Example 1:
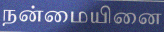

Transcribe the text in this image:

நன்மையினை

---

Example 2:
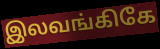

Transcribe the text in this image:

இலவங்கிகே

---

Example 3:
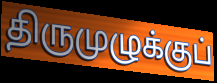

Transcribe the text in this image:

திருமுழுக்குப்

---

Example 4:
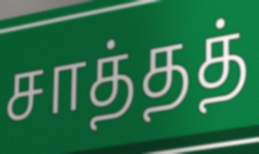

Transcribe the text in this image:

சாத்தத்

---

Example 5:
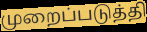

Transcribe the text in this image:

முறைப்படுத்தி